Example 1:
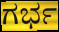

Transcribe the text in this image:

ಗರ್ಭ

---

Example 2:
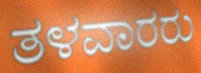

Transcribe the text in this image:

ತಳವಾರರು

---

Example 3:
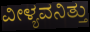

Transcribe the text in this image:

ವೀಳ್ಯವನಿತ್ತು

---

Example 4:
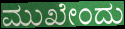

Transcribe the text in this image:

ಮುಖೇಂದು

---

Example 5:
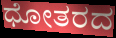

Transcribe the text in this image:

ಧೋತರದ